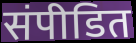
संपीडित